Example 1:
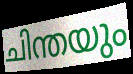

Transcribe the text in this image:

ചിന്തയും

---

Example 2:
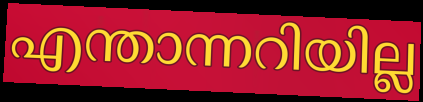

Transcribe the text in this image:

എന്താന്നറിയില്ല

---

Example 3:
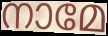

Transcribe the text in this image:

നാമേ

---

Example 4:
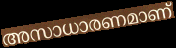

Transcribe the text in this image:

അസാധാരണമാണ്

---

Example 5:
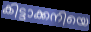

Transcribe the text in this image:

കിട്ടാക്കനിയെ